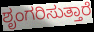
ಶೃಂಗರಿಸುತ್ತಾರೆ